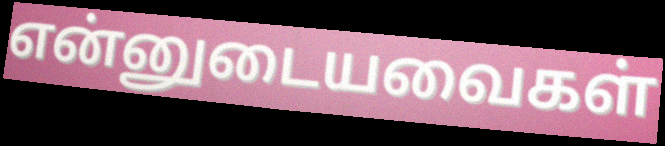
என்னுடையவைகள்